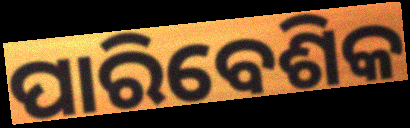
ପାରିବେଶିକ